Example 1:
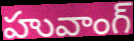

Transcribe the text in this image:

హువాంగ్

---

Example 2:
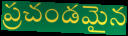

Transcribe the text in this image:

ప్రచండమైన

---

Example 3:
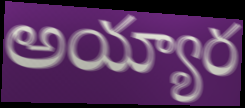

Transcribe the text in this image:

అయ్యార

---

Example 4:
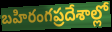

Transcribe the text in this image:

బహిరంగప్రదేశాల్లో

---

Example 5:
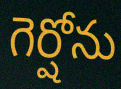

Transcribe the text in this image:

గెర్షోను